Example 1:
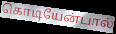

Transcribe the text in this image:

கொடியேன்பால்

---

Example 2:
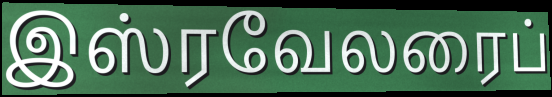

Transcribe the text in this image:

இஸ்ரவேலரைப்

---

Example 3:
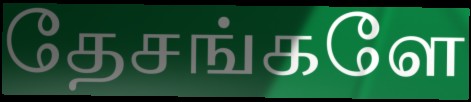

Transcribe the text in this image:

தேசங்களே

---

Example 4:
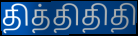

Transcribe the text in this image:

தித்திதிதி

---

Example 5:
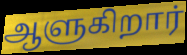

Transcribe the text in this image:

ஆளுகிறார்